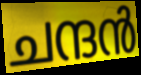
ചന്ദൻ